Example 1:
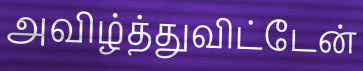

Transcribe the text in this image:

அவிழ்த்துவிட்டேன்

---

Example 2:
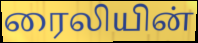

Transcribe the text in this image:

ரைலியின்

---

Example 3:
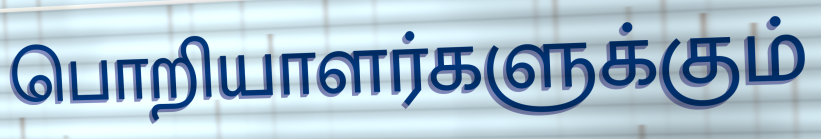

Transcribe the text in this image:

பொறியாளர்களுக்கும்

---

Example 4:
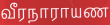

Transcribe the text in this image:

வீரநாராயண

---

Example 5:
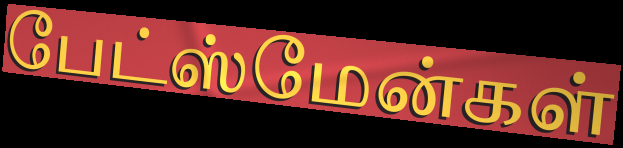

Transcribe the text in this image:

பேட்ஸ்மேன்கள்